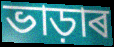
ভাড়াৰ